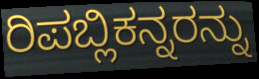
ರಿಪಬ್ಲಿಕನ್ನರನ್ನು